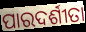
ପାରଦର୍ଶୀତା